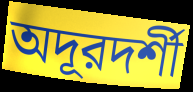
অদূরদর্শী